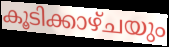
കൂടിക്കാഴ്ചയും